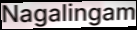
Nagalingam